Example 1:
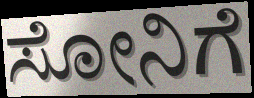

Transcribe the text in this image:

ಸೋನಿಗೆ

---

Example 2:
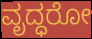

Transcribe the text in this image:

ವೃದ್ಧರೋ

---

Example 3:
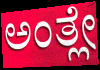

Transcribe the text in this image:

ಅಂತ್ಲೇ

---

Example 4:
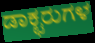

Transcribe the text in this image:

ಡಾಕ್ಟರುಗಳ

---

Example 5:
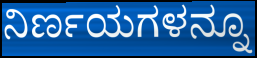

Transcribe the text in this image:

ನಿರ್ಣಯಗಳನ್ನೂ